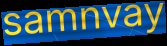
samnvay